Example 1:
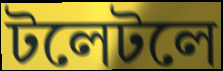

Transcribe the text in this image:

টলেটলে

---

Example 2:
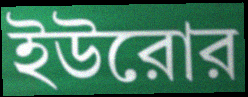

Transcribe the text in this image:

ইউরোর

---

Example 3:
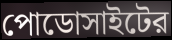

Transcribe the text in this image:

পোডোসাইটের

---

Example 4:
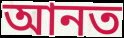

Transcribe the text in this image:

আনত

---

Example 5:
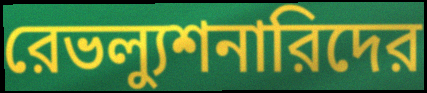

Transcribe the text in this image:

রেভল্যুশনারিদের